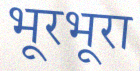
भूरभूरा